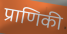
प्राणिकी